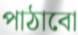
পাঠাবো